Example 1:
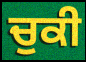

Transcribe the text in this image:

ਚੁਕੀ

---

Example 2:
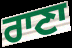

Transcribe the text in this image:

ਰਾਣਾ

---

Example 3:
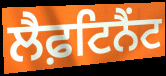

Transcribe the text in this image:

ਲੈਫ਼ਟਿਨੈਂਟ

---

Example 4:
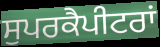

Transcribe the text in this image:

ਸੁਪਰਕੈਪੀਟਰਾਂ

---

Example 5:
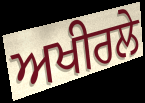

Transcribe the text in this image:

ਅਖੀਰਲੇ